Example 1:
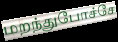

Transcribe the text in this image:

மறந்துபோச்சே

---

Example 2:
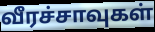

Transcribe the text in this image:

வீரச்சாவுகள்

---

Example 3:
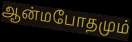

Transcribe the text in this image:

ஆன்மபோதமும்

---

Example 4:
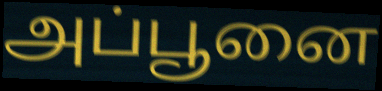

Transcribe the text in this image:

அப்பூனை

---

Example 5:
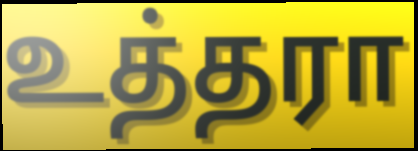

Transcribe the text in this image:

உத்தரா